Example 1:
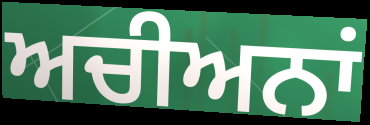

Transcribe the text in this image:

ਅਚੀਅਨਾਂ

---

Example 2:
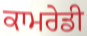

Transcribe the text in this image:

ਕਾਮਰੇਡੀ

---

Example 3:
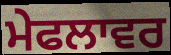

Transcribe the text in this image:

ਮੇਫਲਾਵਰ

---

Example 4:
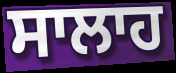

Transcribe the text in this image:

ਸਾਲਾਹ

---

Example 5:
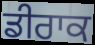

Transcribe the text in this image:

ਡੀਰਾਕ